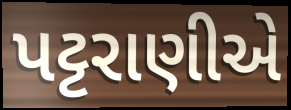
પટ્ટરાણીએ